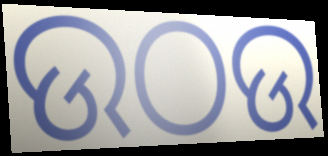
ଉଠଉ